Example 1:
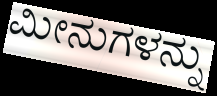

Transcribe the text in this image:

ಮೀನುಗಳನ್ನು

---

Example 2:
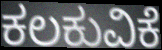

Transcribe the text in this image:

ಕಲಕುವಿಕೆ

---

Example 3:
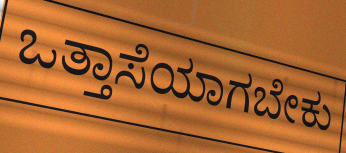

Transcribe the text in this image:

ಒತ್ತಾಸೆಯಾಗಬೇಕು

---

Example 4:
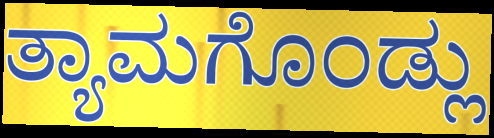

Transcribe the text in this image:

ತ್ಯಾಮಗೊಂಡ್ಲು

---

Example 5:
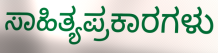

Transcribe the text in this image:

ಸಾಹಿತ್ಯಪ್ರಕಾರಗಳು